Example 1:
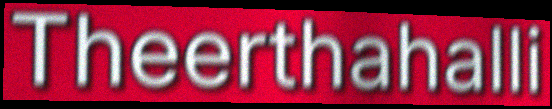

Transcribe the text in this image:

Theerthahalli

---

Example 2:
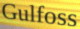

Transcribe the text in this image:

Gulfoss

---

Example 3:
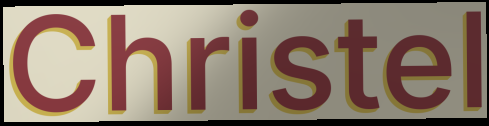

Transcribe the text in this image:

Christel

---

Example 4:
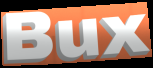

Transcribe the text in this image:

Bux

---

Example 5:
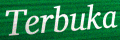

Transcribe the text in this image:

Terbuka